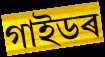
গাইডৰ